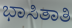
ಭಾಸಿತಾತಿ